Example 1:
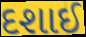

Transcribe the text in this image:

દશાઈ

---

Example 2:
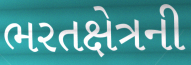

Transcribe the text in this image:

ભરતક્ષેત્રની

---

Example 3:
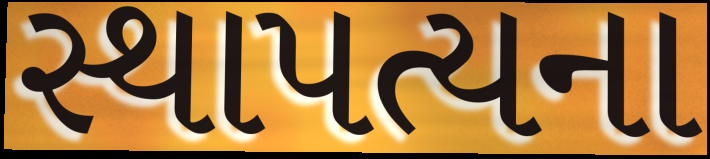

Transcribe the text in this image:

સ્થાપત્યના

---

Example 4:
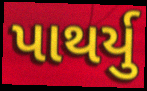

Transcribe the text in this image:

પાથર્યુ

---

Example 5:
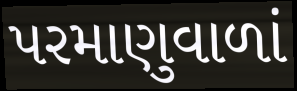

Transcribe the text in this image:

પરમાણુવાળાં